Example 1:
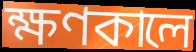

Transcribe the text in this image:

ক্ষণকালে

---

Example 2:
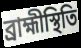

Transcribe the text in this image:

ব্রাহ্মীস্থিতি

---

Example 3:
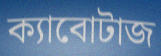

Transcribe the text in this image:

ক্যাবোটাজ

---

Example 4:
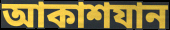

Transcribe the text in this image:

আকাশযান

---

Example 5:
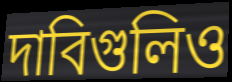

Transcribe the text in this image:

দাবিগুলিও